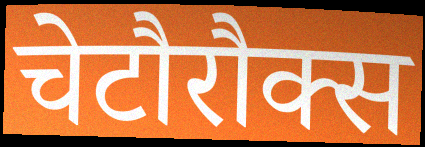
चेटौरौक्स